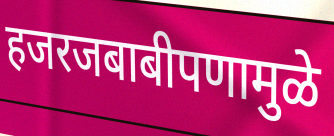
हजरजबाबीपणामुळे